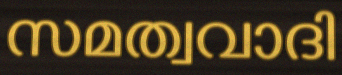
സമത്വവാദി